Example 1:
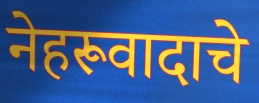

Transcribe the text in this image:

नेहरूवादाचे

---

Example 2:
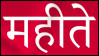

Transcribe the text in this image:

महीते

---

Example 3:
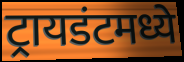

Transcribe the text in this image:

ट्रायडंटमध्ये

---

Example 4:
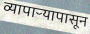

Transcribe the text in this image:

व्यापाऱ्यापासून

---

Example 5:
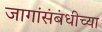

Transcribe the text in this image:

जागांसंबंधीच्या